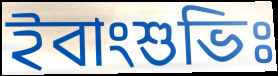
ইবাংশুভিঃ